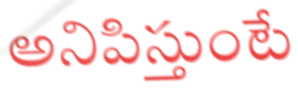
అనిపిస్తుంటే